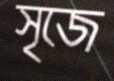
সৃজে